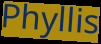
Phyllis